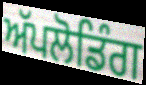
ਅੱਪਲੋਡਿੰਗ